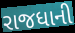
રાજધાની